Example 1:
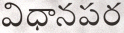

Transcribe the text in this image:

విధానపర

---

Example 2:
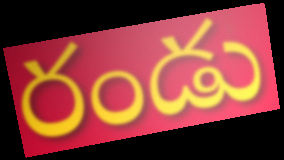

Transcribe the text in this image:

రండు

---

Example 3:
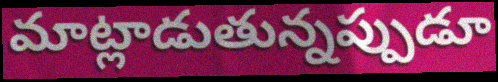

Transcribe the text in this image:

మాట్లాడుతున్నప్పుడూ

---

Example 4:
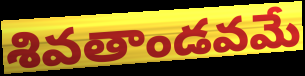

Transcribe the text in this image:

శివతాండవమే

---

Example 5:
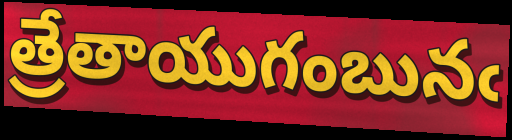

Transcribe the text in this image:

త్రేతాయుగంబునఁ